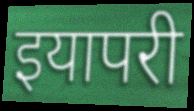
इयापरी